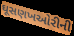
ઘૂસણખઓરીની